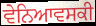
ਵੇਨਿਆਵਸਕੀ